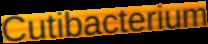
Cutibacterium